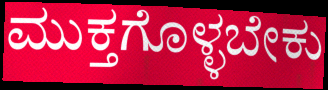
ಮುಕ್ತಗೊಳ್ಳಬೇಕು